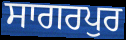
ਸਾਗਰਪੁਰ